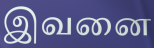
இவனை